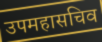
उपमहासचिव